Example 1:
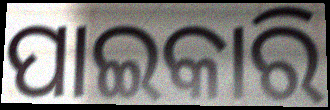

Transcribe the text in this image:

ପାଇକାରି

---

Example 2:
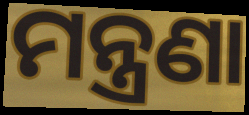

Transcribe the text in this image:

ମନ୍ତ୍ରଣା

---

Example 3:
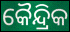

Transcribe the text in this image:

କୈନ୍ଦ୍ରିକ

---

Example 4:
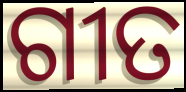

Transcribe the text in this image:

ଗୀତ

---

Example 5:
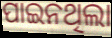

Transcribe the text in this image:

ପାଇନଥିଲା